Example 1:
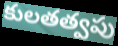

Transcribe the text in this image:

కులతత్వపు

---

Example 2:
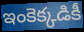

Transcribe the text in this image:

ఇంకెక్కడికీ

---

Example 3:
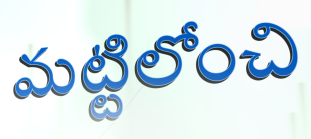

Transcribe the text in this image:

మట్టిలోంచి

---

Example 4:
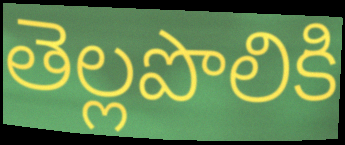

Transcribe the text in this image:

తెల్లపొలికి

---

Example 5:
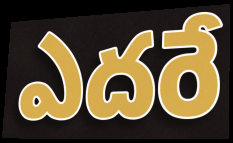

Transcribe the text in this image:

ఎదరే